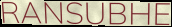
RANSUBHE